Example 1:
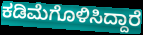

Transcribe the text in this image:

ಕಡಿಮೆಗೊಳಿಸಿದ್ದಾರೆ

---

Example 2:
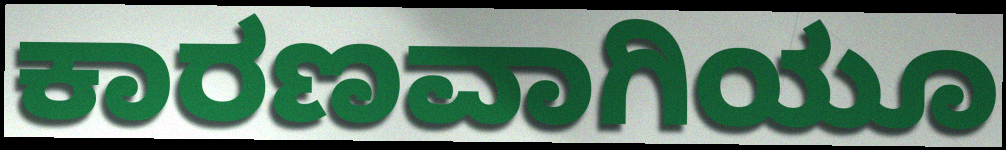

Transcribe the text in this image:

ಕಾರಣವಾಗಿಯೂ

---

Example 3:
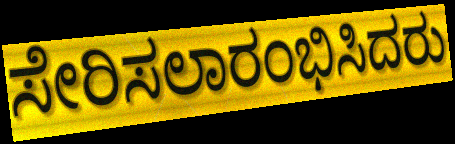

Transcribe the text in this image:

ಸೇರಿಸಲಾರಂಭಿಸಿದರು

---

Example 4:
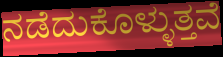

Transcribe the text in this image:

ನಡೆದುಕೊಳ್ಳುತ್ತವೆ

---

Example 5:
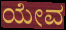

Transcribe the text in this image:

ಯೇವ